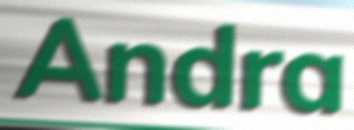
Andra